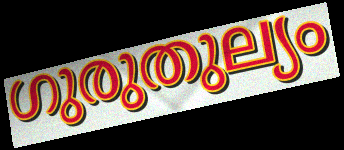
ഗുരുതുല്യം